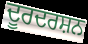
ਦੂਰਦਰਸ਼ਨ